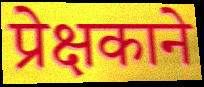
प्रेक्षकाने